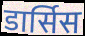
डार्सिस